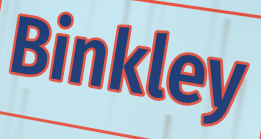
Binkley